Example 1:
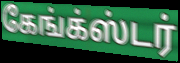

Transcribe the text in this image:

கேங்க்ஸ்டர்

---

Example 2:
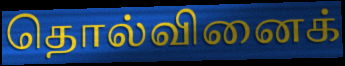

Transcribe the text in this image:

தொல்வினைக்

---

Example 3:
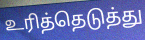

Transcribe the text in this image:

உரித்தெடுத்து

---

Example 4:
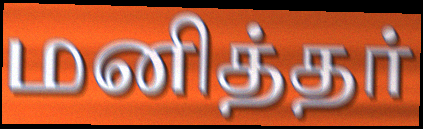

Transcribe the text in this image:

மனித்தர்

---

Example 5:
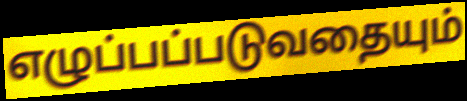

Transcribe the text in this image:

எழுப்பப்படுவதையும்